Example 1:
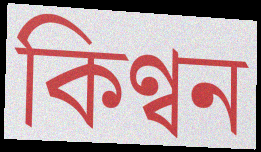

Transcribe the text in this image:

কিণ্বন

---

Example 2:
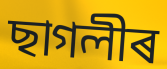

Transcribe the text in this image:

ছাগলীৰ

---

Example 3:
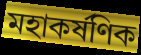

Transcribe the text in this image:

মহাকৰ্ষণিক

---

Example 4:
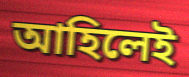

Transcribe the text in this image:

আহিলেই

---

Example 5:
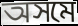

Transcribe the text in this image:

অসমে